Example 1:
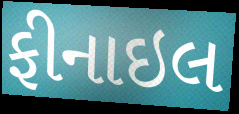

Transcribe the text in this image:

ફીનાઇલ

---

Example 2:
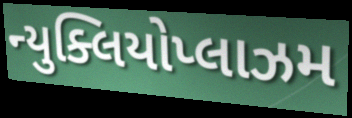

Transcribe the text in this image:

ન્યુક્લિયોપ્લાઝમ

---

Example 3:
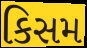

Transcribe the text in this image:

કિસમ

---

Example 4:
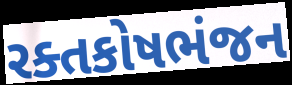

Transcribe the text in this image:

રક્તકોષભંજન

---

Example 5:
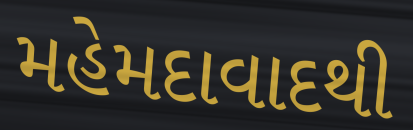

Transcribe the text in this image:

મહેમદાવાદથી